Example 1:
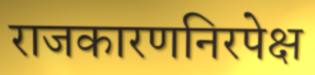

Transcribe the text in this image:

राजकारणनिरपेक्ष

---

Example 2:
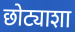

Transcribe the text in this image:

छोट्याशा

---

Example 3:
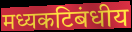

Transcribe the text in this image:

मध्यकटिबंधीय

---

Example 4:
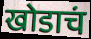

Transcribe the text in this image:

खोडाचं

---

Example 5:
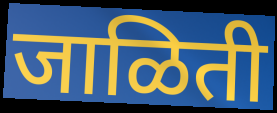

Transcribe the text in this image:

जाळिती